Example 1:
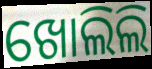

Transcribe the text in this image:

ଖୋଲିଲି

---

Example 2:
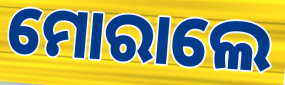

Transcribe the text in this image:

ମୋରାଲେ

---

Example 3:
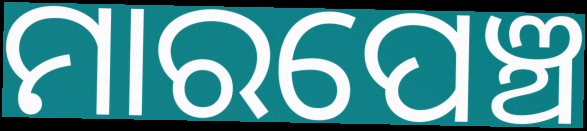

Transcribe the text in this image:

ମାରପେଞ୍ଚ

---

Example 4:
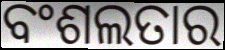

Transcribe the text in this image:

ବଂଶଲତାର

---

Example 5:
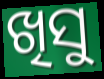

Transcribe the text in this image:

ଖିସୁ